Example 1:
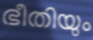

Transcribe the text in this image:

ഭീതിയും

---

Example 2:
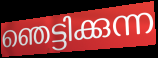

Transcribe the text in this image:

ഞെട്ടിക്കുന്ന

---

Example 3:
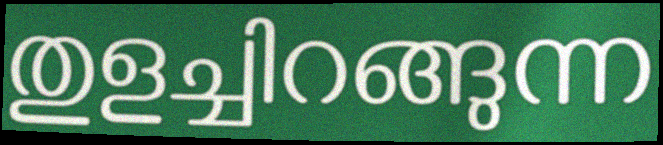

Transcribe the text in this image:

തുളച്ചിറങ്ങുന്ന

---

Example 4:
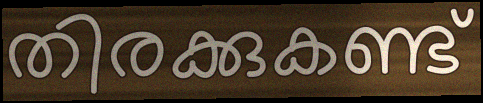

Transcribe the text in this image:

തിരക്കുകണ്ട്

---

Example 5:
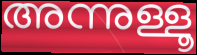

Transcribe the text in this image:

അന്നുള്ളൂ